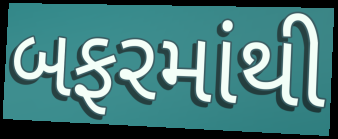
બફરમાંથી